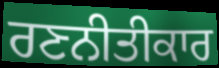
ਰਣਨੀਤੀਕਾਰ